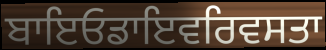
ਬਾਇਓਡਾਇਵਰਿਵਸਤਾ